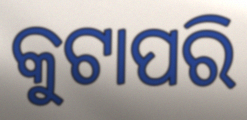
କୁଟାପରି